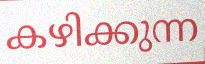
കഴിക്കുന്ന